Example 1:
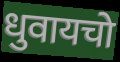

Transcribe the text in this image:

धुवायचो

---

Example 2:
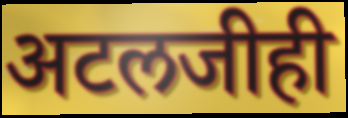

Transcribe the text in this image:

अटलजीही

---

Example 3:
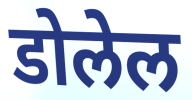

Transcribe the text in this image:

डोलेल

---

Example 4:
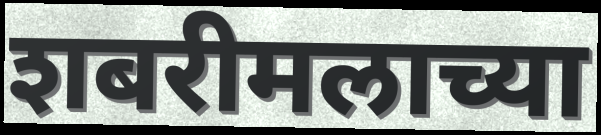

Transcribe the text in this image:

शबरीमलाच्या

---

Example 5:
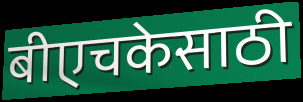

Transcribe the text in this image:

बीएचकेसाठी